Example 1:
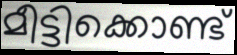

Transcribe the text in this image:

മീട്ടിക്കൊണ്ട്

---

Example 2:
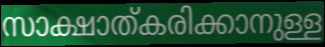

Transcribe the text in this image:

സാക്ഷാത്കരിക്കാനുള്ള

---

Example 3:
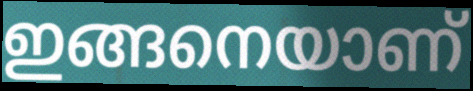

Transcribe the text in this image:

ഇങ്ങനെയാണ്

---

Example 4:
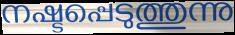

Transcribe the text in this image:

നഷ്ടപ്പെടുത്തുന്നു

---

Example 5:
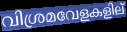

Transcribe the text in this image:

വിശ്രമവേളകളില്